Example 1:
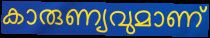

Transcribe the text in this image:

കാരുണ്യവുമാണ്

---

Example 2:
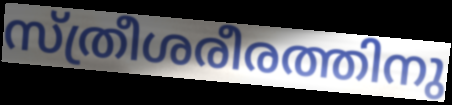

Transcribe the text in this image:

സ്ത്രീശരീരത്തിനു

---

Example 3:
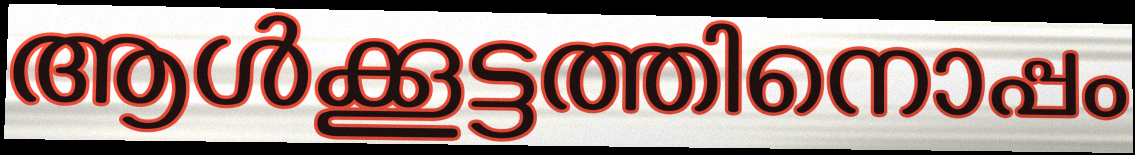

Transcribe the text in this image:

ആൾക്കൂട്ടത്തിനൊപ്പം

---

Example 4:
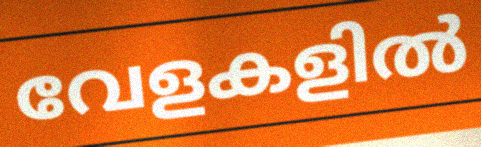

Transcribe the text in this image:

വേളകളിൽ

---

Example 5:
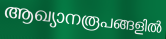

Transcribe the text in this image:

ആഖ്യാനരൂപങ്ങളിൽ